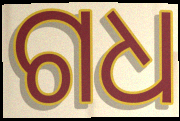
ଗଧ